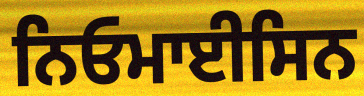
ਨਿਓਮਾਈਸਿਨ